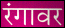
रंगावर